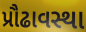
પ્રૌઢાવસ્થા